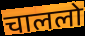
चाललो